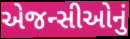
એજન્સીઓનું